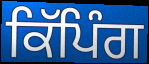
ਕਿੱਪਿੰਗ